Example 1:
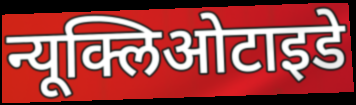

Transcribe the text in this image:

न्यूक्लिओटाइडे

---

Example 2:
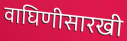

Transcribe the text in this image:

वाघिणीसारखी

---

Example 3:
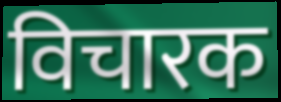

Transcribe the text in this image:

विचारक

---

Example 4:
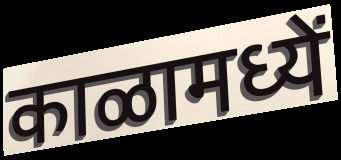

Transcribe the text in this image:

काळामध्यें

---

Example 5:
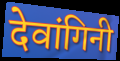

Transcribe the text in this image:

देवांगिनी